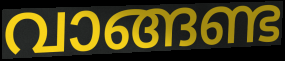
വാങ്ങണ്ട